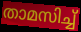
താമസിച്ച്